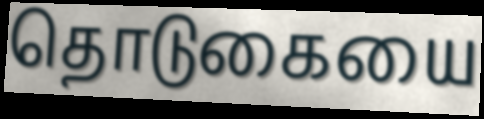
தொடுகையை